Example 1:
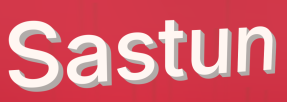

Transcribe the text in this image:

Sastun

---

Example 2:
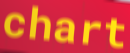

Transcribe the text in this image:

chart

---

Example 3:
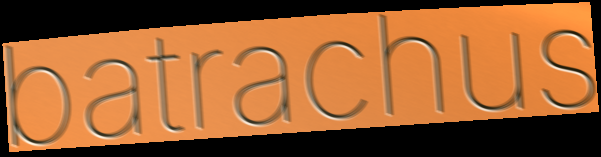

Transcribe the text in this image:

batrachus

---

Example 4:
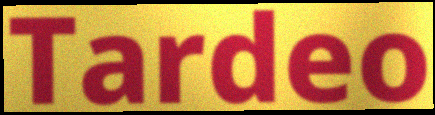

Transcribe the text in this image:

Tardeo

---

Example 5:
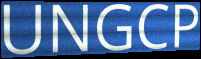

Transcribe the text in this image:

UNGCP